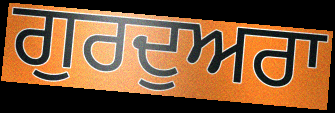
ਗੁਰਦੁਅਰਾ